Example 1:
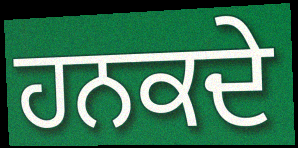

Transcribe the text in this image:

ਹਨਕਦੇ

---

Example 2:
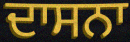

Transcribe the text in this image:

ਦਾਸਨਾ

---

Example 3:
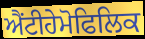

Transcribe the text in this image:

ਐਂਟੀਹੇਮੋਫਿਲਿਕ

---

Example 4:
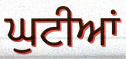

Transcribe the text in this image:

ਘੁਟੀਆਂ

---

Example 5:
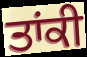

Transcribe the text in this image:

ਤਾਂਕੀ